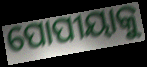
ପୋପୀୟାକୁ